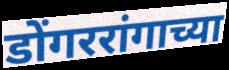
डोंगररांगाच्या